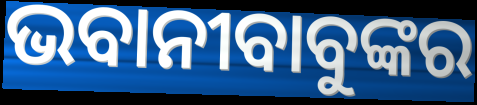
ଭବାନୀବାବୁଙ୍କର